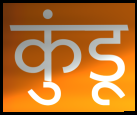
कुंडू